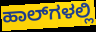
ಹಾಲ್‌ಗಳಲ್ಲಿ